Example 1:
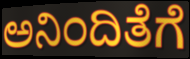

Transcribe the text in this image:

ಅನಿಂದಿತೆಗೆ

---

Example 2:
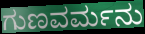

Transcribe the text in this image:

ಗುಣವರ್ಮನು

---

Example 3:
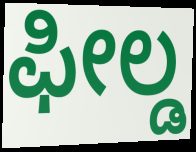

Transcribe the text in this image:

ಫೀಲ್ಡ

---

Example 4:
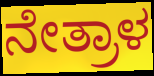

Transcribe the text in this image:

ನೇತ್ರಾಳ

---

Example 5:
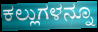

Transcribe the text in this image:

ಕಲ್ಲುಗಳನ್ನೂ